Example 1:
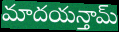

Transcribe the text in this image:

మాదయన్తామ్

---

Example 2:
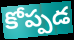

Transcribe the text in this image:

కోప్పడ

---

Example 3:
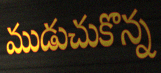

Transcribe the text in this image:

ముడుచుకొన్న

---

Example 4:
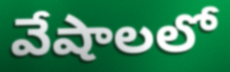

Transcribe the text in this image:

వేషాలలో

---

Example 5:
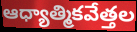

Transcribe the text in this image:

ఆధ్యాత్మికవేత్తల